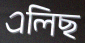
এলিছ